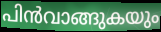
പിൻവാങ്ങുകയും